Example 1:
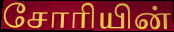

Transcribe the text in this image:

சோரியின்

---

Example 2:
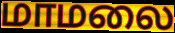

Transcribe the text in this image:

மாமலை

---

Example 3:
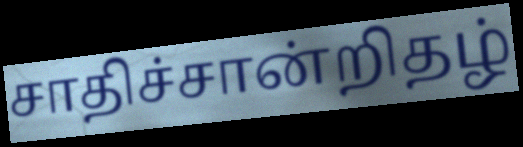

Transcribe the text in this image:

சாதிச்சான்றிதழ்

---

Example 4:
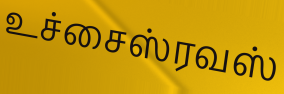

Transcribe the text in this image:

உச்சைஸ்ரவஸ்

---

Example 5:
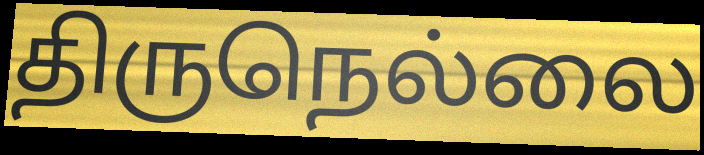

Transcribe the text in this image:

திருநெல்லை